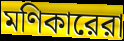
মণিকারেরা